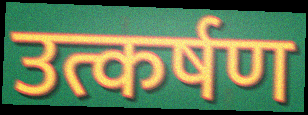
उत्कर्षण